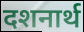
दशनार्थ